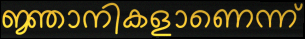
ജ്ഞാനികളാണെന്ന്